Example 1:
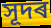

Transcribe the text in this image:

সূদৰ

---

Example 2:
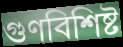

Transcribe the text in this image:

গুণবিশিষ্ট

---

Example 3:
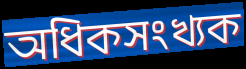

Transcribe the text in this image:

অধিকসংখ্যক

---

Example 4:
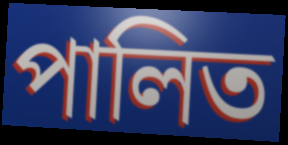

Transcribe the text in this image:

পালিত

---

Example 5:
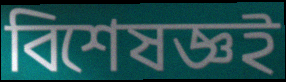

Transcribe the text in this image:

বিশেষজ্ঞই